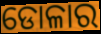
ଡୋଳାର